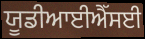
ਯੂਡੀਆਈਐੱਸਈ